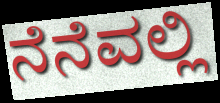
ನೆನೆವಲ್ಲಿ